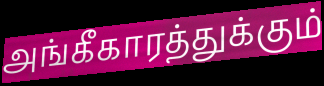
அங்கீகாரத்துக்கும்